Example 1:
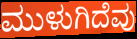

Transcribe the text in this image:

ಮುಳುಗಿದೆವು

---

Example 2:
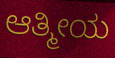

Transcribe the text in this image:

ಆತ್ಮೀಯ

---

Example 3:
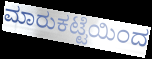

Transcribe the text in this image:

ಮಾರುಕಟ್ಟೆಯಿಂದ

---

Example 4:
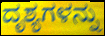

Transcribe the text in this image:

ದೃಶ್ಯಗಳನ್ನು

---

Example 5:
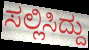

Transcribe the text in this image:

ಸಲ್ಲಿಸಿದ್ದು